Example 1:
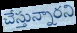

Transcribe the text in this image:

చేస్తున్నారని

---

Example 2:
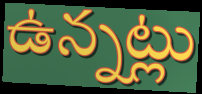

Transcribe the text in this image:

ఉన్నట్లు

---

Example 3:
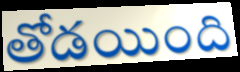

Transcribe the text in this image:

తోడయింది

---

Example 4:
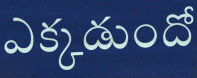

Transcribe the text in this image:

ఎక్కడుందో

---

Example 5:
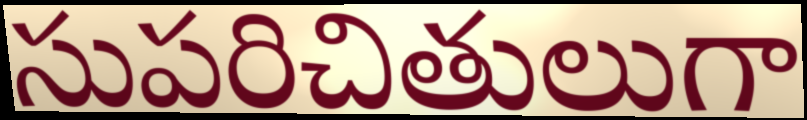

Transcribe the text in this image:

సుపరిచితులుగా